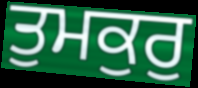
ਤੁਮਕੁਰੁ